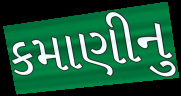
કમાણીનુ